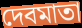
দেবমাতা